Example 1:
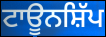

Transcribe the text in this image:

ਟਾਊਨਸ਼ਿੱਪ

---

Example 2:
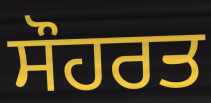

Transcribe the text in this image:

ਸੌਹਰਤ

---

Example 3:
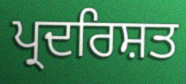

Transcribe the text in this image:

ਪ੍ਰਦਰਿਸ਼ਤ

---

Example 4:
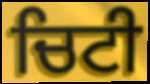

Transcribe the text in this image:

ਚਿਟੀ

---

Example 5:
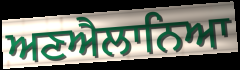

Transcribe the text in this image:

ਅਣਐਲਾਨਿਆ